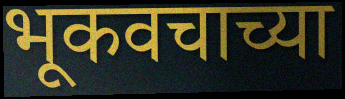
भूकवचाच्या